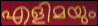
എളിമയും